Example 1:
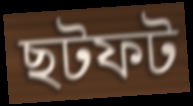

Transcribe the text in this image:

ছটফট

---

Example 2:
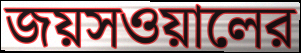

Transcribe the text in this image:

জয়সওয়ালের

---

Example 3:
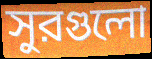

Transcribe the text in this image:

সুরগুলো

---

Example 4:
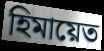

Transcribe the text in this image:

হিমায়েত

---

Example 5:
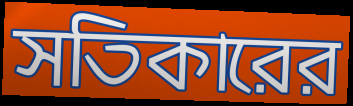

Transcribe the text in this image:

সতিকারের